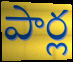
పార్ల